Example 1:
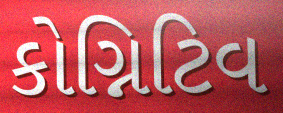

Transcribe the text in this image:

કોગ્નિટિવ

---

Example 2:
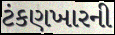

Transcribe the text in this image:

ટંકણખારની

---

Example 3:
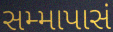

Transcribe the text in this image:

સમ્માપાસં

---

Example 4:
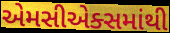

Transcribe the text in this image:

એમસીએક્સમાંથી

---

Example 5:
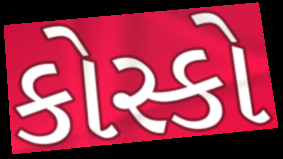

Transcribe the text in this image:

કોસ્કો